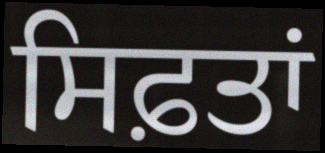
ਸਿਫ਼ਤਾਂ